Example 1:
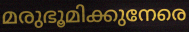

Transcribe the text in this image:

മരുഭൂമിക്കുനേരെ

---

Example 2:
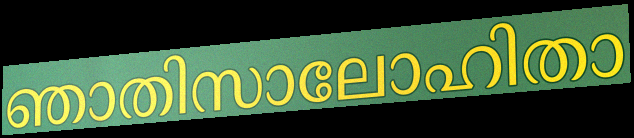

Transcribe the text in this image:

ഞാതിസാലോഹിതാ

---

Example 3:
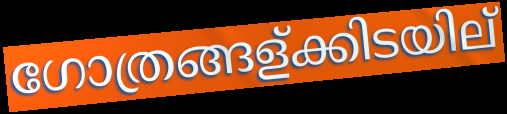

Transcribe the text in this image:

ഗോത്രങ്ങള്ക്കിടയില്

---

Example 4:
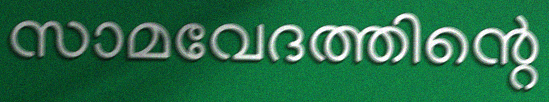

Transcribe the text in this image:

സാമവേദത്തിന്റെ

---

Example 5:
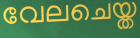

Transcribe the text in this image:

വേലചെയ്ത